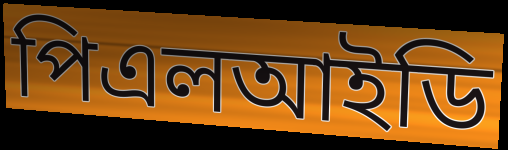
পিএলআইডি